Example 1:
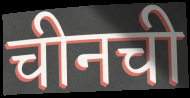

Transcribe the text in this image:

चीनची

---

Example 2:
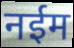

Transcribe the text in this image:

नईम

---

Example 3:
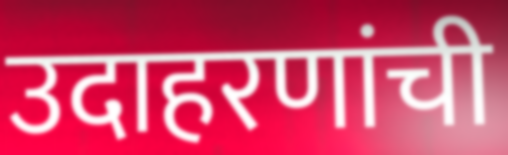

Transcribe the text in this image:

उदाहरणांची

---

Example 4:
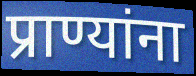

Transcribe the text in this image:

प्राण्यांना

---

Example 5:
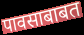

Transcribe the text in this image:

पावसाबाबत